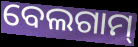
ବେଲଗାମ୍